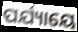
ପର୍ଯ୍ୟାୟେ